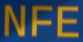
NFE